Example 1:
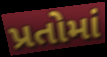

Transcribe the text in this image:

પ્રતોમાં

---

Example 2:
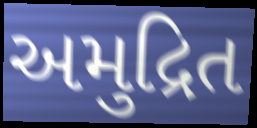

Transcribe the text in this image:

અમુદ્રિત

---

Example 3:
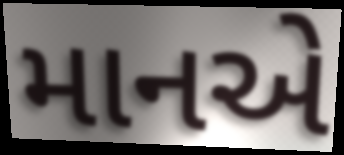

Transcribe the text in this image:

માનએ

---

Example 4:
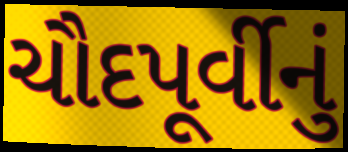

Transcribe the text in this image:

ચૌદપૂર્વીનું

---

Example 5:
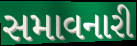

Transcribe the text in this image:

સમાવનારી